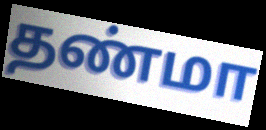
தண்மா